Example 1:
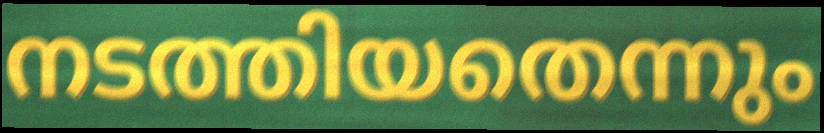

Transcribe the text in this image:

നടത്തിയതെന്നും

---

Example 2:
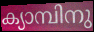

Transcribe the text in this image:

ക്യാമ്പിനു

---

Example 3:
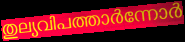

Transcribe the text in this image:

തുല്യവിപത്താർന്നോർ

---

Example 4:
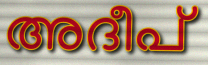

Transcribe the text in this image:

അദീപ്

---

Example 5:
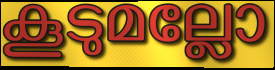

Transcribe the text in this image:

കൂടുമല്ലോ